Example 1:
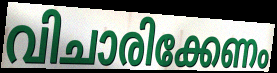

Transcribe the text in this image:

വിചാരിക്കേണം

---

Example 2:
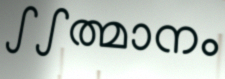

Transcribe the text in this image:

ഽഽത്മാനം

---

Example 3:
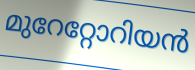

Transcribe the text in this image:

മുറേറ്റോറിയൻ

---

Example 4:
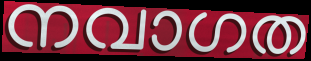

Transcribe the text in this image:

നവാഗത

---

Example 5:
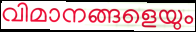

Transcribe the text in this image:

വിമാനങ്ങളെയും